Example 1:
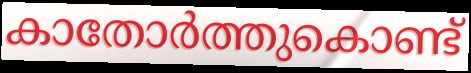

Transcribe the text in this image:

കാതോർത്തുകൊണ്ട്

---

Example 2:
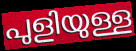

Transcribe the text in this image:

പുളിയുള്ള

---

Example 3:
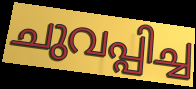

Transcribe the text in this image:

ചുവപ്പിച്ച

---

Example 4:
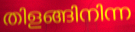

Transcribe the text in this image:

തിളങ്ങിനിന്ന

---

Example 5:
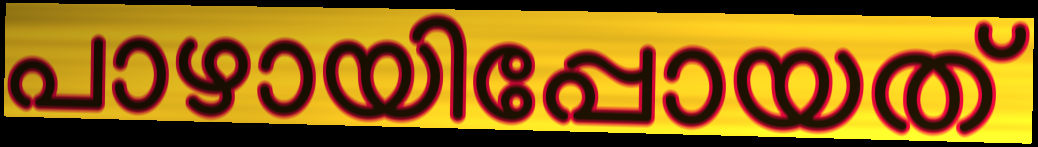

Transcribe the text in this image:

പാഴായിപ്പോയത്